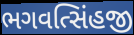
ભગવત્સિંહજી